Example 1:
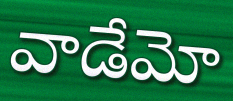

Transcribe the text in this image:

వాడేమో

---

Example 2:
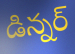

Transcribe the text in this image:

డిన్నర్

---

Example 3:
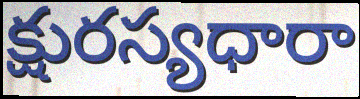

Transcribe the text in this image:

క్షురస్యధారా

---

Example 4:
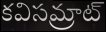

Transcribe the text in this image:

కవిసమ్రాట్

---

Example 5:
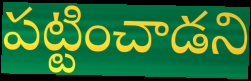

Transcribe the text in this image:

పట్టించాడని